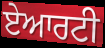
ਏਆਰਟੀ